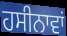
ਹਸੀਨਾਵਾਂ